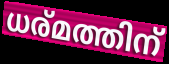
ധര്മത്തിന്